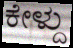
ಕೇಳ್ದು